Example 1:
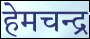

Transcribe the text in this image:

हेमचन्द्र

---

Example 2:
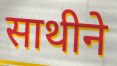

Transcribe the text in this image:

साथीने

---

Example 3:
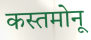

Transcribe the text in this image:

कस्तमोनू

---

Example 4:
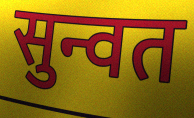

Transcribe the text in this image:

सुन्वत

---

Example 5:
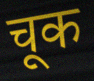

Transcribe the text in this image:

चूक